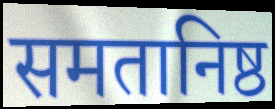
समतानिष्ठ